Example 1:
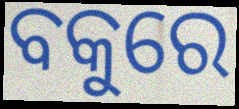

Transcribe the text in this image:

ବକୁରେ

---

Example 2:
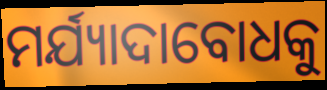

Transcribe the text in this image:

ମର୍ଯ୍ୟାଦାବୋଧକୁ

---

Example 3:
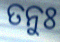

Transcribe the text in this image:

ତନୁଃ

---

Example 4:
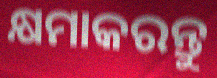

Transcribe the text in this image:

କ୍ଷମାକରନ୍ତୁ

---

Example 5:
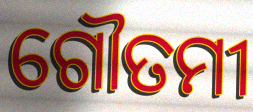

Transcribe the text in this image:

ଗୌତମୀ